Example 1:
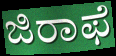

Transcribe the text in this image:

ಜಿರಾಫೆ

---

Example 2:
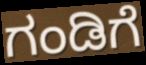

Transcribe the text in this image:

ಗಂಡಿಗೆ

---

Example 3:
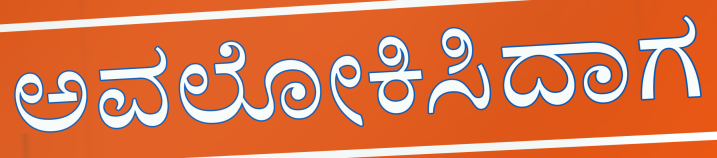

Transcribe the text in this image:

ಅವಲೋಕಿಸಿದಾಗ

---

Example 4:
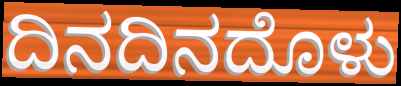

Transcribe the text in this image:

ದಿನದಿನದೊಳು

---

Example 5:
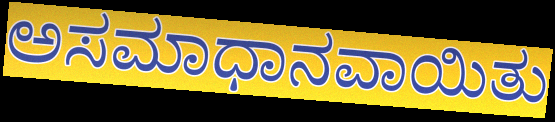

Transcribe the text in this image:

ಅಸಮಾಧಾನವಾಯಿತು